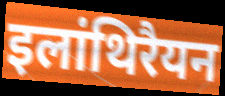
इलांथिरैयन